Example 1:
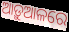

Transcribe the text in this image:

ଆଡ଼ୁଆଳରେ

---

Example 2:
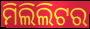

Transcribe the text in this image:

ମିଲିଲିଟର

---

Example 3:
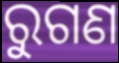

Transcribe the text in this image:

ରୁଗଣ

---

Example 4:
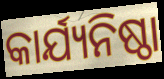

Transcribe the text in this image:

କାର୍ଯ୍ୟନିଷ୍ଠା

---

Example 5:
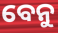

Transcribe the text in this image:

ବେନୁ